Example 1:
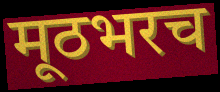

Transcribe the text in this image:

मूठभरच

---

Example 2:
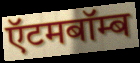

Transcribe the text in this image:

ऍटमबॉम्ब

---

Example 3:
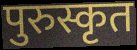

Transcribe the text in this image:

पुरुस्कृत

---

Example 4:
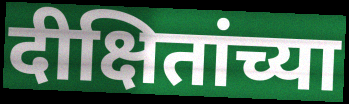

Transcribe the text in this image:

दीक्षितांच्या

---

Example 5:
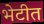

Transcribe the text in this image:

भेटीत